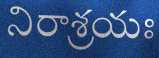
నిరాశ్రయః